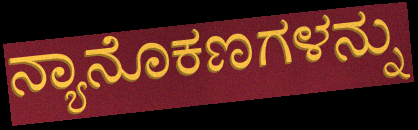
ನ್ಯಾನೊಕಣಗಳನ್ನು